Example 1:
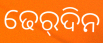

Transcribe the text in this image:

ଢେର୍‌ଦିନ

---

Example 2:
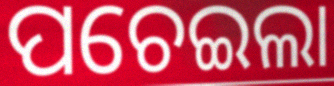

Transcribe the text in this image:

ପଚେଇଲା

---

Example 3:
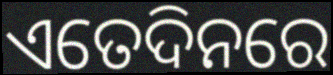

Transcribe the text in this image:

ଏତେଦିନରେ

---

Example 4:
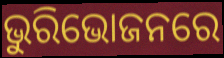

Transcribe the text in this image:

ଭୁରିଭୋଜନରେ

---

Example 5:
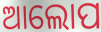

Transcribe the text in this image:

ଆଲୋପ